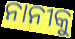
ନାନୀକୁ